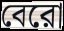
বেরো